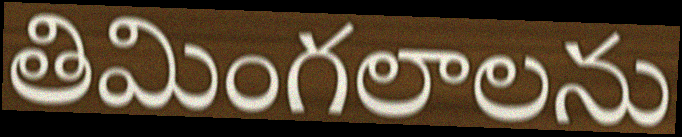
తిమింగలాలను